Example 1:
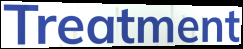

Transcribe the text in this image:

Treatment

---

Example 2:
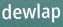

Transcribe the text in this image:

dewlap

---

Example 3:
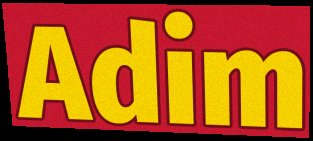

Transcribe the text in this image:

Adim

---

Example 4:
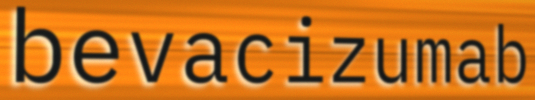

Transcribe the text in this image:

bevacizumab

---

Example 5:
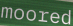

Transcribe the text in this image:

moored